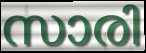
സാരി